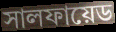
সালফায়েড